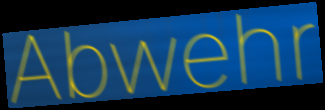
Abwehr